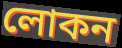
লোকন